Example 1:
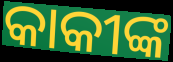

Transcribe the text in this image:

କାକୀଙ୍କ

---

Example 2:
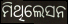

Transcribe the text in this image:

ମିଥିଲେସନ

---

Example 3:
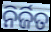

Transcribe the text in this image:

ନିର୍ଜିତ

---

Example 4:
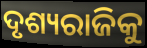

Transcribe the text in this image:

ଦୃଶ୍ୟରାଜିକୁ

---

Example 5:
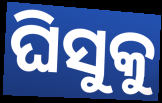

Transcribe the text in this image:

ଘିସୁକୁ